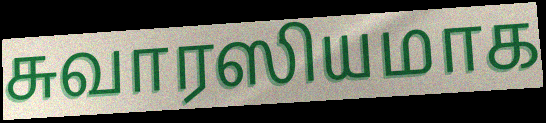
சுவாரஸியமாக